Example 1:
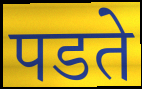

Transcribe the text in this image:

पडते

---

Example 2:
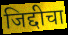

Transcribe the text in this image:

जिद्दीचा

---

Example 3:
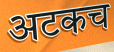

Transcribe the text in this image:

अटकच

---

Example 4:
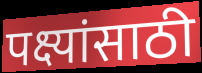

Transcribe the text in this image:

पक्ष्यांसाठी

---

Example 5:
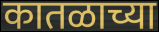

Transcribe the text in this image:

कातळाच्या